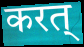
करत्